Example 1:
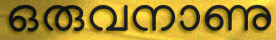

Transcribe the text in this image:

ഒരുവനാണു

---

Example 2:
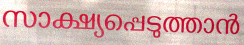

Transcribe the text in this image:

സാക്ഷ്യപ്പെടുത്താൻ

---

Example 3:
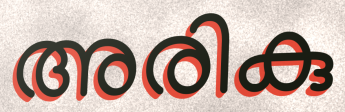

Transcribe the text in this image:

അരികു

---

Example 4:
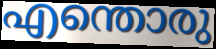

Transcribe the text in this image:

എന്തൊരു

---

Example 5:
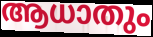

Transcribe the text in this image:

ആധാതും